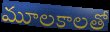
మూలకాలతో